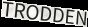
TRODDEN